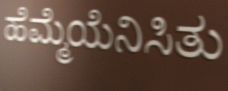
ಹೆಮ್ಮೆಯೆನಿಸಿತು